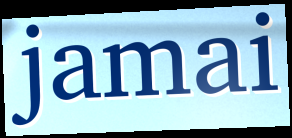
jamai